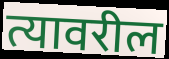
त्यावरील